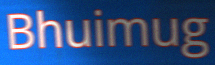
Bhuimug